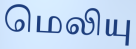
மெலியு